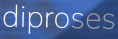
diproses